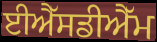
ਈਐੱਸਡੀਐੱਮ